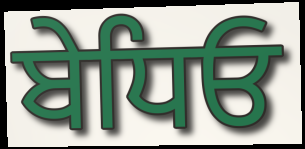
ਬੇਧਿਓ